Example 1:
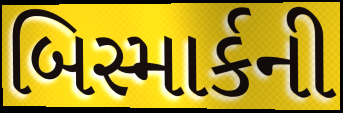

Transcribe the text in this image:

બિસ્માર્કની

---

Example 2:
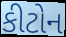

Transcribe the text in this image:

કીટોન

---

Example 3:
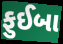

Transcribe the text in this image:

ફુઈબા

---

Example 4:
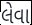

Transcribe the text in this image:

લેવા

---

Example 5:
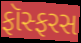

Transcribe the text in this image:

ફૉસ્ફરસ